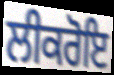
ਲੀਕਰੋਇ